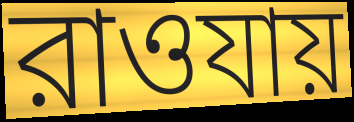
রাওযায়